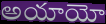
అయాయో